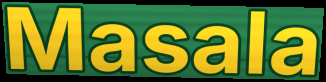
Masala